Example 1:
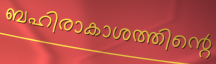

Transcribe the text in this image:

ബഹിരാകാശത്തിന്റെ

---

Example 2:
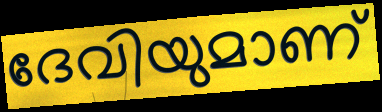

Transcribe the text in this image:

ദേവിയുമാണ്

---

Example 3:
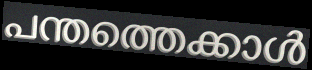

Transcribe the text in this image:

പന്തത്തെക്കാൾ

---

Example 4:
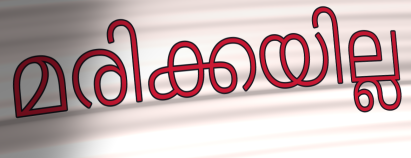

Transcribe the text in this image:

മരിക്കയില്ല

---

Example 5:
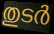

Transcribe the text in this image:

തുടർ